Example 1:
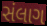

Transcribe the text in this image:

સંલાગ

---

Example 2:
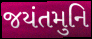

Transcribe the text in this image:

જયંતમુનિ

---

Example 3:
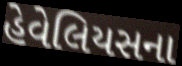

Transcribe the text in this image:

હેવેલિયસના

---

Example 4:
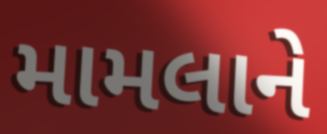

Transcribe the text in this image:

મામલાને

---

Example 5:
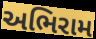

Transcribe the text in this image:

અભિરામ